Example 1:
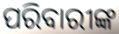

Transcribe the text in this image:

ପରିବାରୀଙ୍କ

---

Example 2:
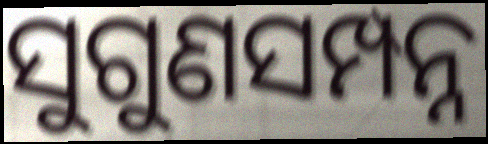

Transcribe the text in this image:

ସୁଗୁଣସମ୍ପନ୍ନ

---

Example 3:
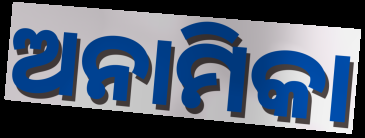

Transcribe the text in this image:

ଅନାମିକା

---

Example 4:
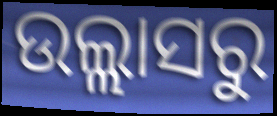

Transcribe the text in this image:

ଉଲ୍ଲାସରୁ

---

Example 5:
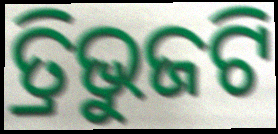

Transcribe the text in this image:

ତ୍ରିଭୁଜଟି